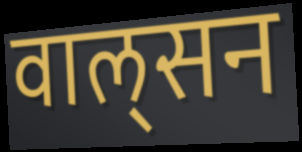
वाल्सन